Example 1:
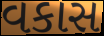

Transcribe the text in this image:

વકાસ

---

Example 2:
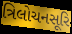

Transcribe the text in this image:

ત્રિલોચનસૂરિ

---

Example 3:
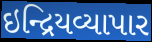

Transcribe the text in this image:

ઇન્દ્રિયવ્યાપાર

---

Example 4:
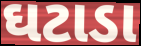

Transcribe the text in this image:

ઘટાડા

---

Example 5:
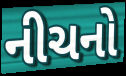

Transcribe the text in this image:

નીચનો